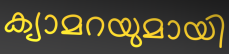
ക്യാമറയുമായി